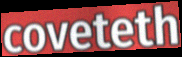
coveteth